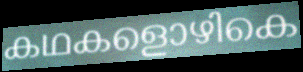
കഥകളൊഴികെ